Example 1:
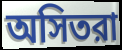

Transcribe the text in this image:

অসিতরা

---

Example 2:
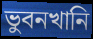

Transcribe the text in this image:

ভুবনখানি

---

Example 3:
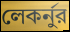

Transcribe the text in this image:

লেকর্নুর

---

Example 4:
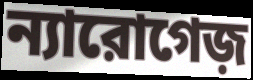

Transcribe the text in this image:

ন্যারোগেজ়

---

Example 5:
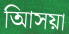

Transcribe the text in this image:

আিসয়া